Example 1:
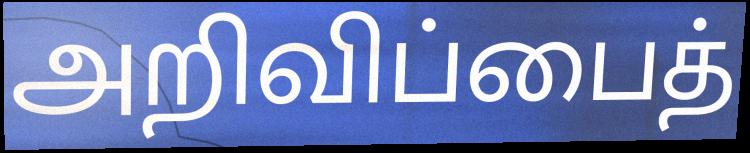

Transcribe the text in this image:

அறிவிப்பைத்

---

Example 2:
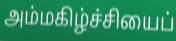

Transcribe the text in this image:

அம்மகிழ்ச்சியைப்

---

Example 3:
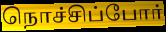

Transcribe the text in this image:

நொச்சிப்போர்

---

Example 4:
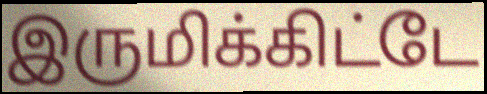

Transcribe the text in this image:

இருமிக்கிட்டே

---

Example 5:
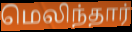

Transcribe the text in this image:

மெலிந்தார்